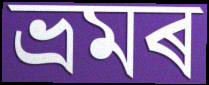
ভ্ৰমৰ